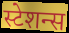
स्टेशन्स